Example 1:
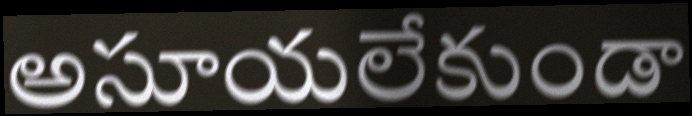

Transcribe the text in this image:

అసూయలేకుండా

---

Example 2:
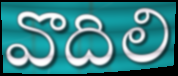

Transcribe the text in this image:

వొదిలి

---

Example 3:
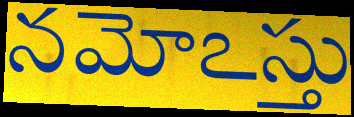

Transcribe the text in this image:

నమోఽస్తు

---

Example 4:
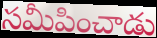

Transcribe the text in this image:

సమీపించాడు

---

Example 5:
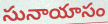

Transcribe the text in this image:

సునాయాసం